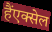
हैंएक्सेल